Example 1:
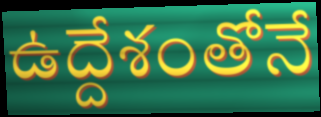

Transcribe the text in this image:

ఉద్దేశంతోనే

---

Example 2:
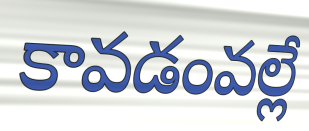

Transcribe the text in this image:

కావడంవల్లే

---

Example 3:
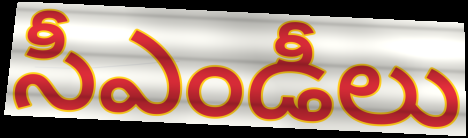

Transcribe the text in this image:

సీఎండీలు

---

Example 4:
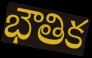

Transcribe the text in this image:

భౌతిక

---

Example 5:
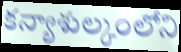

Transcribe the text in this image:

కన్యాశుల్కంలోని